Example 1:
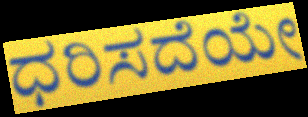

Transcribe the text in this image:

ಧರಿಸದೆಯೇ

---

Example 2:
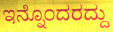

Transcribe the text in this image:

ಇನ್ನೊಂದರದ್ದು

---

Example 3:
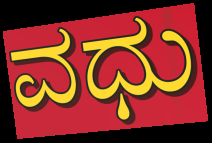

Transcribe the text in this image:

ವಧು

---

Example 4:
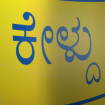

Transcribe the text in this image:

ಕೇಳ್ದು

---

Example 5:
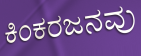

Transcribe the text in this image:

ಕಿಂಕರಜನವು